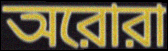
অরোরা